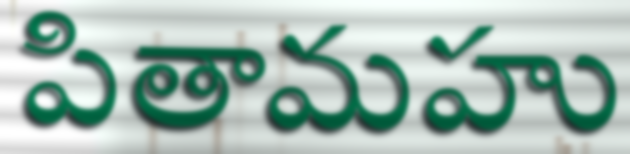
పితామహు